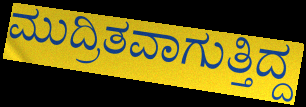
ಮುದ್ರಿತವಾಗುತ್ತಿದ್ದ